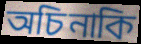
অচিনাকি